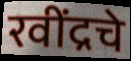
रवींद्रचे